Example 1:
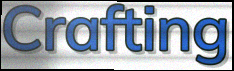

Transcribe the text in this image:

Crafting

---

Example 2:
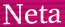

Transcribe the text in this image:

Neta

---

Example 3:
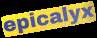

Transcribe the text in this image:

epicalyx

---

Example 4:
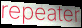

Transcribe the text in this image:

repeater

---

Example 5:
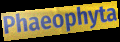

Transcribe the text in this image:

Phaeophyta